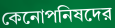
কেনোপনিষদের